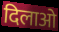
दिलाओ